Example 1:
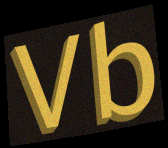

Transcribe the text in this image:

Vb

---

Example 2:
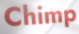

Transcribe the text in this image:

Chimp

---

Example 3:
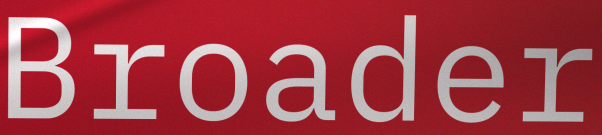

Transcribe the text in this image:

Broader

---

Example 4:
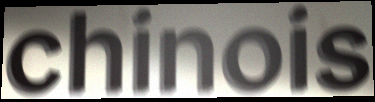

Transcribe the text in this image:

chinois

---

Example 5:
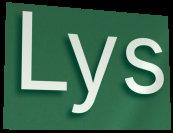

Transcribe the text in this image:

Lys